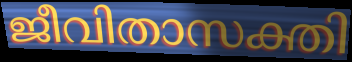
ജീവിതാസക്തി